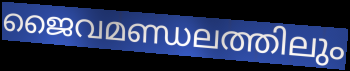
ജൈവമണ്ഡലത്തിലും